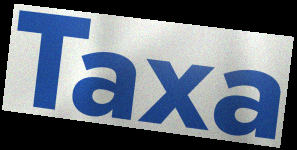
Taxa